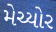
મેચ્યોર